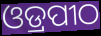
ଓଡ୍ରପୀଠ